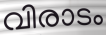
വിരാടം